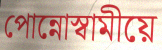
পোন্নোস্বামীয়ে